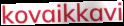
kovaikkavi